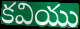
కవియు